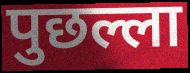
पुछल्ला